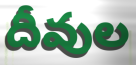
దీవుల